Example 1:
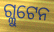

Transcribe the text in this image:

ଗ୍ଲୁଟେନ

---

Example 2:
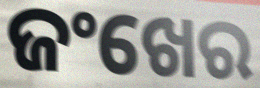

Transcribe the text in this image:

ଜଂଖେର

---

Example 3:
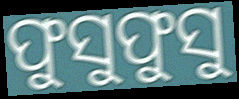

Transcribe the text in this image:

ଫୁସୁଫୁସୁ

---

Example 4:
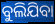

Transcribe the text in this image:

ବୁଲିଯିବା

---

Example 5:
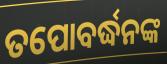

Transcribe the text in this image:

ତପୋବର୍ଦ୍ଧନଙ୍କ